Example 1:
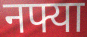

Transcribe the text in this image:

नफ्या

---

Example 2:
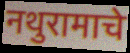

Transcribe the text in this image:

नथुरामाचे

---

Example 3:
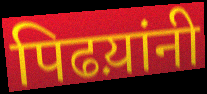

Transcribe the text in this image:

पिढय़ांनी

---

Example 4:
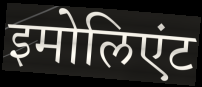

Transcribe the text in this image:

इमोलिएंट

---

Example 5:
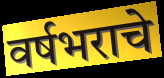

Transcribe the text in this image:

वर्षभराचे